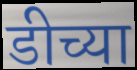
डीच्या